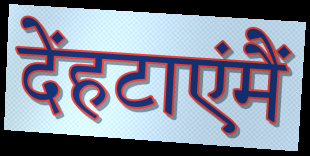
देंहटाएंमैं